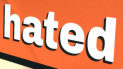
hated